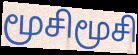
மூசிமூசி